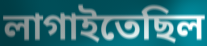
লাগাইতেছিল